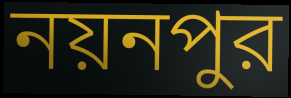
নয়নপুর